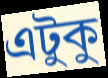
এটুকু